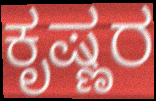
ಕೃಷ್ಣರ